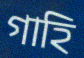
গাহি